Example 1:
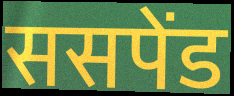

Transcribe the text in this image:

ससपेंड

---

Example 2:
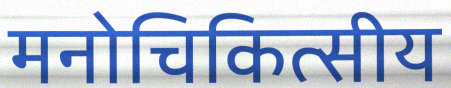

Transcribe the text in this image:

मनोचिकित्सीय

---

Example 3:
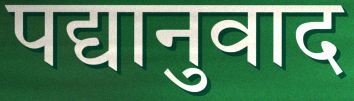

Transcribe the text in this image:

पद्यानुवाद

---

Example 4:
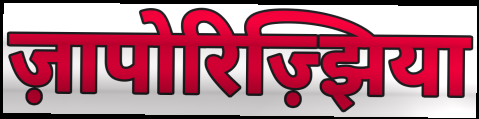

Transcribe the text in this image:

ज़ापोरिज़्झिया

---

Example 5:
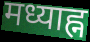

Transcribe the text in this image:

मध्याह्न